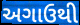
અગાઉથી